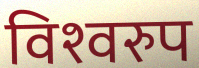
विश्वरुप